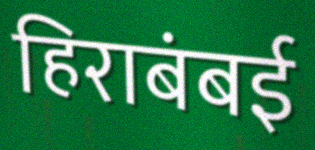
हिराबंबई